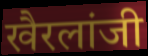
खैरलांजी